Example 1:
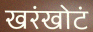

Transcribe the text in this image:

खरंखोटं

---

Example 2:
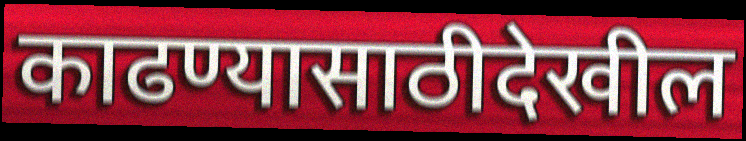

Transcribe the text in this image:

काढण्यासाठीदेखील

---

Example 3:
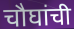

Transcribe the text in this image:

चौघांची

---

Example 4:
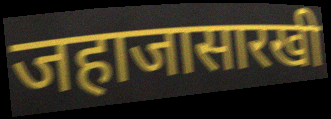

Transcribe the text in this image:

जहाजासारखी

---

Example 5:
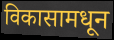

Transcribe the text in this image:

विकासामधून